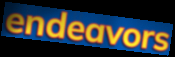
endeavors